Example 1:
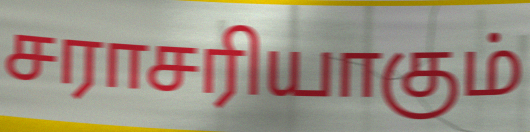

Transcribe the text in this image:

சராசரியாகும்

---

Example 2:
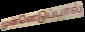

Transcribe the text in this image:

முன்னெடுப்பால்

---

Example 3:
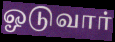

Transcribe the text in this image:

ஓடுவார்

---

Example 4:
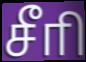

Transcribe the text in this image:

சீரி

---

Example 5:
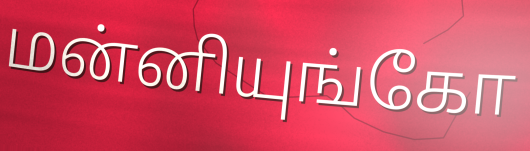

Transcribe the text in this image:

மன்னியுங்கோ